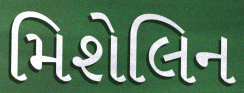
મિશેલિન